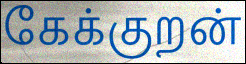
கேக்குறன்